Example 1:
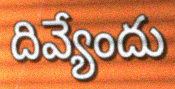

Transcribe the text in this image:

దివ్యేందు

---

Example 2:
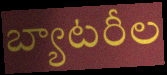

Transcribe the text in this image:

బ్యాటరీల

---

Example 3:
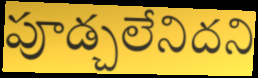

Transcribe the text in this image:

పూడ్చలేనిదని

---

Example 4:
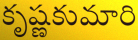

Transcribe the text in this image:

కృష్ణకుమారి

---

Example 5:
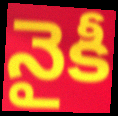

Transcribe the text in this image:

నైకీ